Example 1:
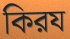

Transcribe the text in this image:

কিরয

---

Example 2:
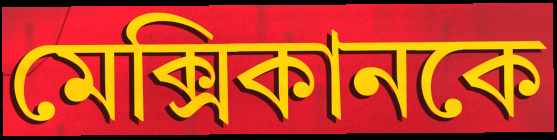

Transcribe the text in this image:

মেক্সিকানকে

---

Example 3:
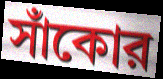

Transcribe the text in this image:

সাঁকোর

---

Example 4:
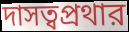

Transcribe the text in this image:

দাসত্বপ্রথার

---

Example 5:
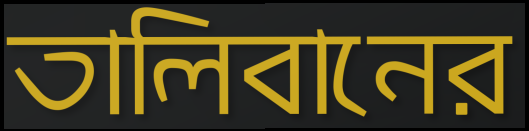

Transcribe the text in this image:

তালিবানের